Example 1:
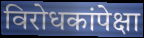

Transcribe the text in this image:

विरोधकांपेक्षा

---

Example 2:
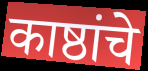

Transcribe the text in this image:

काष्ठांचे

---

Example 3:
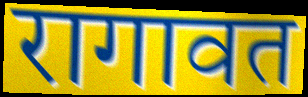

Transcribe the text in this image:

रागावत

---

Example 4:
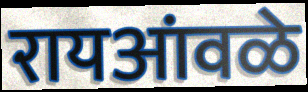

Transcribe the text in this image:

रायआंवळे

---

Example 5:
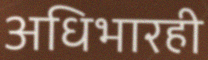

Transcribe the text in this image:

अधिभारही